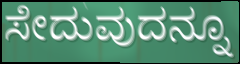
ಸೇದುವುದನ್ನೂ